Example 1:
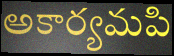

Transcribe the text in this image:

అకార్యమపి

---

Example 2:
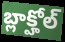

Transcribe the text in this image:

బ్లాక్హోల్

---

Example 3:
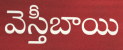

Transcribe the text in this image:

వెస్తీబాయి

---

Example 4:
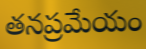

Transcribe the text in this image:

తనప్రమేయం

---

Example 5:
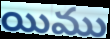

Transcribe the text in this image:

యిము